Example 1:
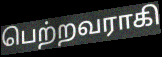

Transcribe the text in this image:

பெற்றவராகி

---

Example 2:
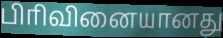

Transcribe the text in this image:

பிரிவினையானது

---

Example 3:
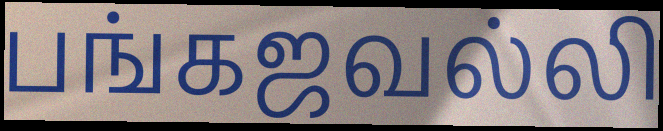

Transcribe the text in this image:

பங்கஜவல்லி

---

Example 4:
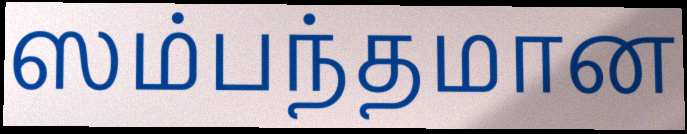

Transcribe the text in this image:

ஸம்பந்தமான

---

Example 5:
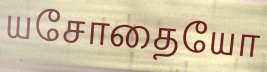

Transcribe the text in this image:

யசோதையோ